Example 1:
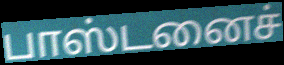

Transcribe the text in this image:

பாஸ்டனைச்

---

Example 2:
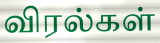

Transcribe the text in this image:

விரல்கள்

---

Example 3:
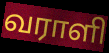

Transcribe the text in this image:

வராளி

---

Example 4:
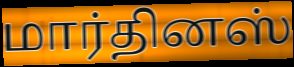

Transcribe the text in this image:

மார்தினஸ்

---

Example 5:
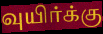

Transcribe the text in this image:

வுயிர்க்கு